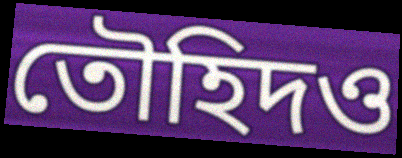
তৌহিদও